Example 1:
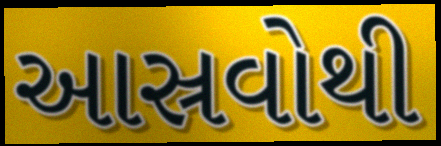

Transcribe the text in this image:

આસ્રવોથી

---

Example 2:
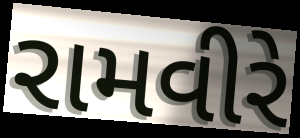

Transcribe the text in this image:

રામવીરે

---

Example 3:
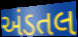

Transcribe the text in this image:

અંડતલ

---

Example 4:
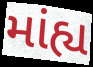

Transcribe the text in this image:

માંહ્ય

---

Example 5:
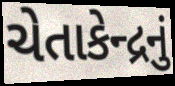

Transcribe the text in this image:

ચેતાકેન્દ્રનું